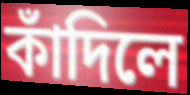
কাঁদিলে